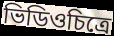
ভিডিওচিত্রে